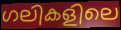
ഗലികളിലെ